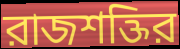
রাজশক্তির